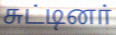
சுட்டினர்